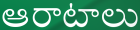
ఆరాటాలు